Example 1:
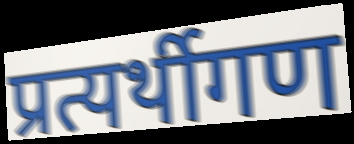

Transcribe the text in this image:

प्रत्यर्थीगण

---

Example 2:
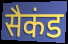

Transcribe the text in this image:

सैकंड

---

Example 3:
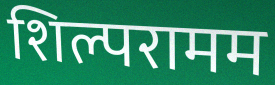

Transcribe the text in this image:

शिल्परामम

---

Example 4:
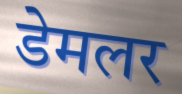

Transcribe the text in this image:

डेमलर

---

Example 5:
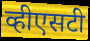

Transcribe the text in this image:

व्हीएसटी